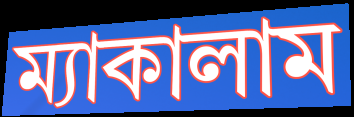
ম্যাকালাম